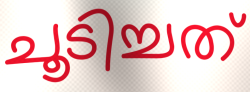
ചൂടിച്ചത്